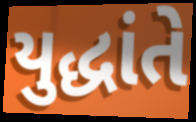
યુદ્ધાંતે